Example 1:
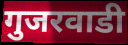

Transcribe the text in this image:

गुजरवाडी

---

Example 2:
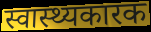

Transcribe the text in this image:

स्वास्थ्यकारक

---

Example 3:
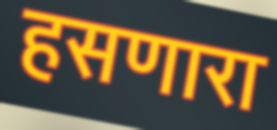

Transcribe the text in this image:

हसणारा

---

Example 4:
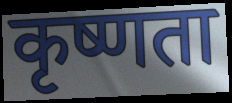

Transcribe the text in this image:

कृष्णता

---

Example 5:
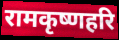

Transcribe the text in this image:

रामकृष्णहरि